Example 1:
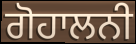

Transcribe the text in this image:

ਗੋਹਾਲਨੀ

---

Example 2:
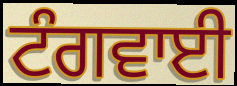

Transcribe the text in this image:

ਟੰਗਵਾਈ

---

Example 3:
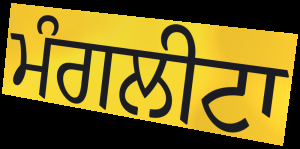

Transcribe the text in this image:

ਮੰਗਲੀਟਾ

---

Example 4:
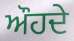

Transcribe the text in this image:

ਔਹਦੇ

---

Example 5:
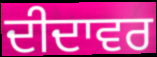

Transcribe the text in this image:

ਦੀਦਾਵਰ